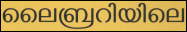
ലൈബ്രറിയിലെ